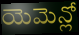
యెమెన్లో